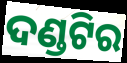
ଦଣ୍ଡଟିର